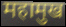
महामुख